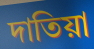
দাতিয়া